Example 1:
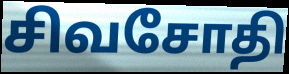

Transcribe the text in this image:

சிவசோதி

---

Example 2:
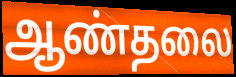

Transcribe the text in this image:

ஆண்தலை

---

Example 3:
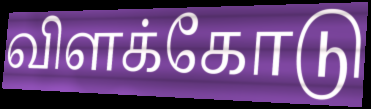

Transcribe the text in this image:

விளக்கோடு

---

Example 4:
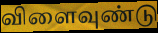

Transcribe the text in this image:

விளைவுண்டு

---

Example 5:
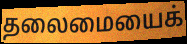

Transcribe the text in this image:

தலைமையைக்